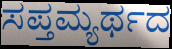
ಸಪ್ತಮ್ಯರ್ಥದ